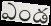
ఎండ